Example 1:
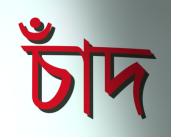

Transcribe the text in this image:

চাঁদ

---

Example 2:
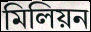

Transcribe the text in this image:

মিলিয়ন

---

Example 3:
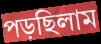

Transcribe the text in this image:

পড়ছিলাম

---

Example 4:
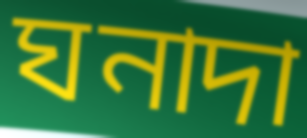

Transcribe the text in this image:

ঘনাদা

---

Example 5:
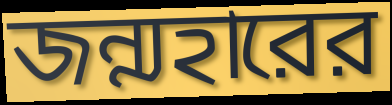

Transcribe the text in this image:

জন্মহারের